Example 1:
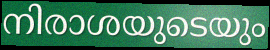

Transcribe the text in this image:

നിരാശയുടെയും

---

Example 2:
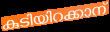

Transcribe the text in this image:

കുടിയിറക്കാന്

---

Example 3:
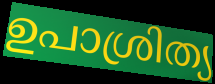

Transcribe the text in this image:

ഉപാശ്രിത്യ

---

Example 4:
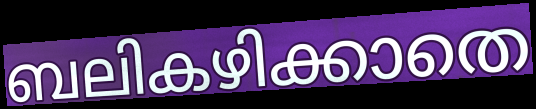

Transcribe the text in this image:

ബലികഴിക്കാതെ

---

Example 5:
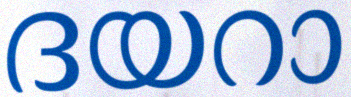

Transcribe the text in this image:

ദയറാ